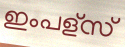
ഇംപള്സ്